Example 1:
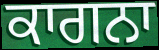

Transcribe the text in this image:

ਕਾਗਨਾ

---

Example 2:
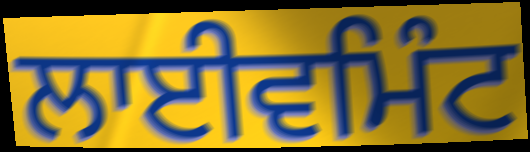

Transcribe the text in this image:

ਲਾਈਵਮਿੰਟ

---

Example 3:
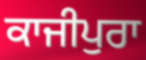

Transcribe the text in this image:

ਕਾਜੀਪੁਰਾ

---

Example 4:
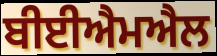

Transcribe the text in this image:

ਬੀਈਐਮਐਲ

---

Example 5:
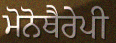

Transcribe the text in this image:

ਮੋਨੋਥੈਰੇਪੀ